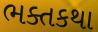
ભક્તકથા